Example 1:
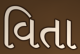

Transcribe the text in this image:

વિતા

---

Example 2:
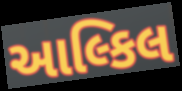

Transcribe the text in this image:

આલ્કિલ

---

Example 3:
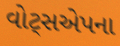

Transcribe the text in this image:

વોટ્સએપના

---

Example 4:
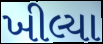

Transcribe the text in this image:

ખીલ્યા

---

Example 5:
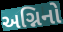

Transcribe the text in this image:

અગ્નિનો